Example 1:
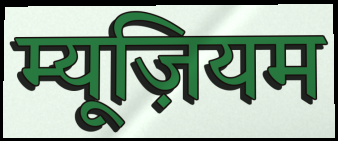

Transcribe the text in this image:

म्यूज़ियम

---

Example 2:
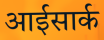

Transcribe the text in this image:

आईसार्क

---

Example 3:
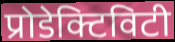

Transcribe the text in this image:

प्रोडेक्टिविटी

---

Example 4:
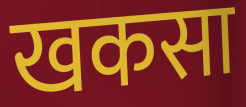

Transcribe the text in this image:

खकसा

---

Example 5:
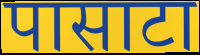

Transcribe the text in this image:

पासाटा